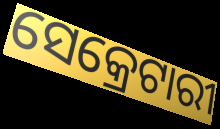
ସେକ୍ରେଟାରୀ